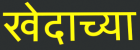
खेदाच्या